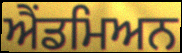
ਐਂਡਮਿਅਨ